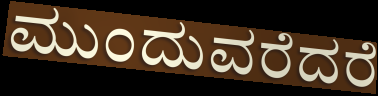
ಮುಂದುವರೆದರೆ